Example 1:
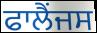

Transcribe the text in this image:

ਫਾਲੈਂਜਸ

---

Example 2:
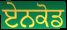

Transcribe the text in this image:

ਏਨਕੋਡ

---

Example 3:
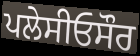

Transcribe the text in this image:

ਪਲੇਸੀਓਸੌਰ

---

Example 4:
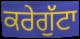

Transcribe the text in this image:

ਕਰੇਗੁੱਟਾ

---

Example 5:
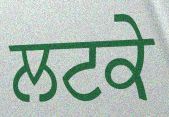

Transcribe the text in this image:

ਲਟਕੇ